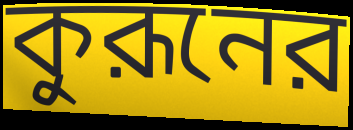
কুরূনের